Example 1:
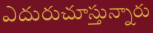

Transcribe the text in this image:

ఎదురుచూస్తున్నారు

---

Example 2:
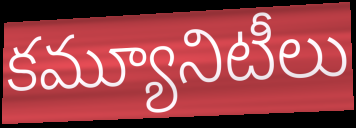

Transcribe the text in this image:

కమ్యూనిటీలు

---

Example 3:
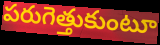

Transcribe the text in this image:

పరుగెత్తుకుంటూ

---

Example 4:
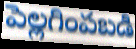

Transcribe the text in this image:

పెల్లగింపబడి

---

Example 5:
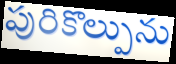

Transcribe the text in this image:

పురికొల్పును